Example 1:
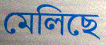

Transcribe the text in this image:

মেলিছে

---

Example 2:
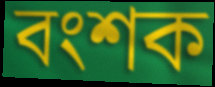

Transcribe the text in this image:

বংশক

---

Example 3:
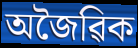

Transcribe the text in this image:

অজৈৱিক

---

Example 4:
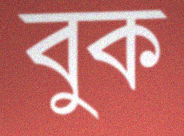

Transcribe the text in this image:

বুক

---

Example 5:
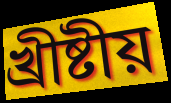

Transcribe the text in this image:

খ্ৰীষ্টীয়